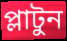
প্লাটুন